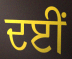
ਦਈਂ